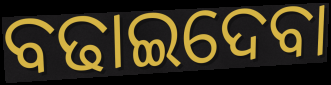
ବଢାଇଦେବା